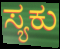
ಸ್ಯಕು